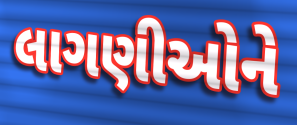
લાગણીઓને